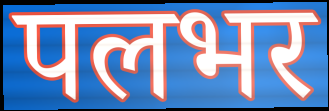
पलभर